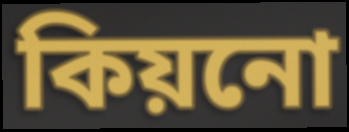
কিয়নো